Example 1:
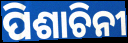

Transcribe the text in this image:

ପିଶାଚିନୀ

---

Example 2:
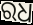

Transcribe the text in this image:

ରଧ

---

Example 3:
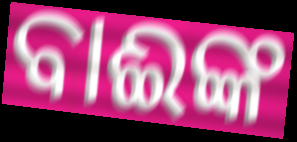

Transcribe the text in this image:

ବାଈଙ୍କ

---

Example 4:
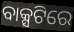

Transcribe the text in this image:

ବାକ୍ସଟିରେ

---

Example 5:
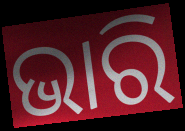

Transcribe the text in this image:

ଭାରି